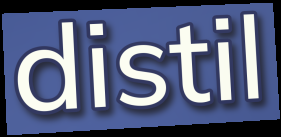
distil